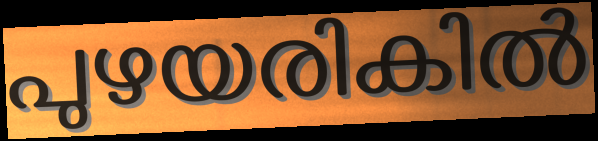
പുഴയരികിൽ